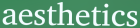
aesthetics